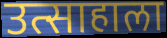
उत्साहाला